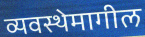
व्यवस्थेमागील